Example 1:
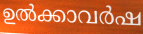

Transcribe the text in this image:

ഉൽക്കാവർഷ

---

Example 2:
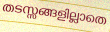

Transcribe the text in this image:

തടസ്സങ്ങളില്ലാതെ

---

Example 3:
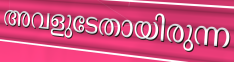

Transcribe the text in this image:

അവളുടേതായിരുന്ന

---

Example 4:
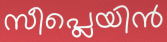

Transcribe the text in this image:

സീപ്ലെയിൻ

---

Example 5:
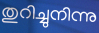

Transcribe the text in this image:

തുറിച്ചുനിന്നു